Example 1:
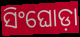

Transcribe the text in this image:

ସିଂଘୋଡ଼ା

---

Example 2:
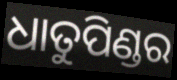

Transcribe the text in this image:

ଧାତୁପିଣ୍ଡର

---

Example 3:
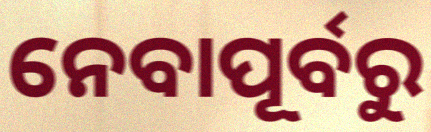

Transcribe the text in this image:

ନେବାପୂର୍ବରୁ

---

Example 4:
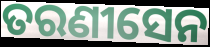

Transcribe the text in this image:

ତରଣୀସେନ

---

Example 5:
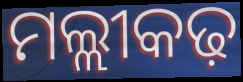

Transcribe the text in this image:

ମଲ୍ଲୀକଢ଼